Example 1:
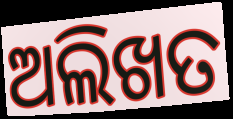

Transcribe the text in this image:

ଅଲିଖତ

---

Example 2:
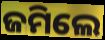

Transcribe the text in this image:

ଜମିଲେ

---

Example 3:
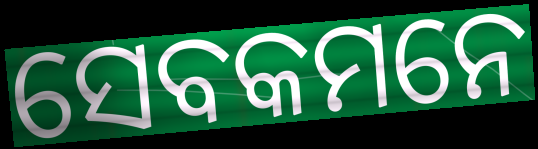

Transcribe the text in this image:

ସେବକମନେ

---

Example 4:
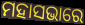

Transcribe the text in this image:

ମହାସଭାରେ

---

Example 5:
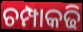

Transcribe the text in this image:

ଚମ୍ପାକଢି